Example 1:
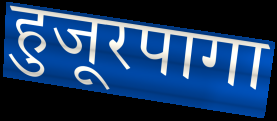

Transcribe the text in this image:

हुजूरपागा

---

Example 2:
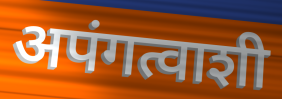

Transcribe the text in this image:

अपंगत्वाशी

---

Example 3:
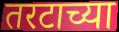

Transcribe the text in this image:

तरटाच्या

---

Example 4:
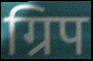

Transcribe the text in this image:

ग्रिप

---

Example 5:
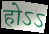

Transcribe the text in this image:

होऽऽ